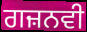
ਗਜ਼ਨਵੀ